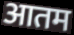
आतम